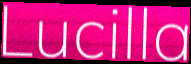
Lucilla